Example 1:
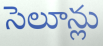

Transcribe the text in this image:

సెలూన్లు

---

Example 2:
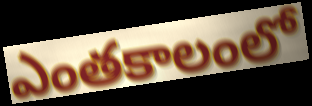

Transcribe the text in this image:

ఎంతకాలంలో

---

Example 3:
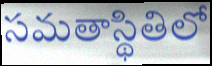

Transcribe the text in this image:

సమతాస్థితిలో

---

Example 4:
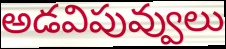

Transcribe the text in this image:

అడవిపువ్వులు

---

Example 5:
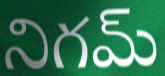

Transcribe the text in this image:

నిగమ్